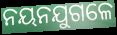
ନୟନଯୁଗଳେ